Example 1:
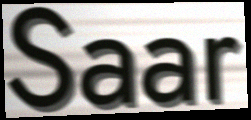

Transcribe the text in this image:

Saar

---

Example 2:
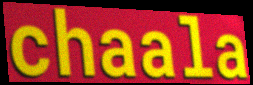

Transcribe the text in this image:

chaala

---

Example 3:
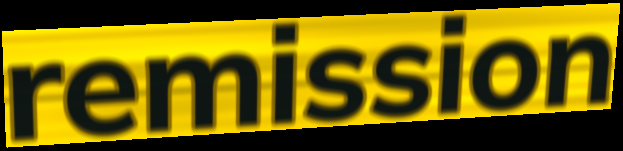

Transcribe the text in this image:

remission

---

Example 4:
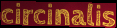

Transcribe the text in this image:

circinalis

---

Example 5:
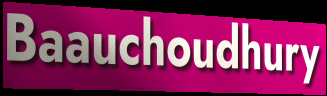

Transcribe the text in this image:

Baauchoudhury